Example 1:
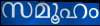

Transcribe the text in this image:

സമൂഹം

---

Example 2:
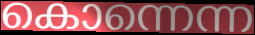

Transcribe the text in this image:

കൊന്നെന്ന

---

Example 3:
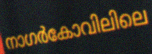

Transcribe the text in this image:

നാഗർകോവിലിലെ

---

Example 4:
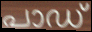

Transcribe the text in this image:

പാഡ്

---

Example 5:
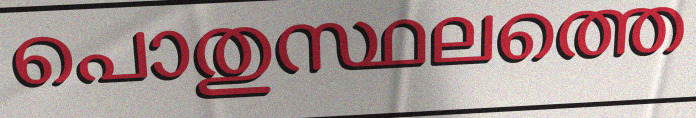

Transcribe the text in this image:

പൊതുസ്ഥലത്തെ